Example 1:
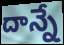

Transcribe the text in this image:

దాన్నే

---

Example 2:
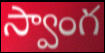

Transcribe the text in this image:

స్వాంగ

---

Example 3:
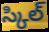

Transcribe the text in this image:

స్కిల్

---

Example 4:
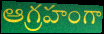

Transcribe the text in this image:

ఆగ్రహంగా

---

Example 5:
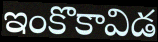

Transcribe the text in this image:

ఇంకొకావిడ